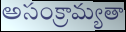
అసంక్రామ్యతా